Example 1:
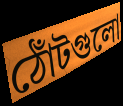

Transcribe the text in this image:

ঠোঁটগুলো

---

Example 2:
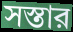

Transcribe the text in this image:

সস্তার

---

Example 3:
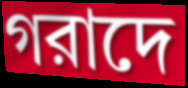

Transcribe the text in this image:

গরাদে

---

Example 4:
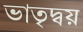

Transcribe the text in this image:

ভাতৃদ্বয়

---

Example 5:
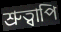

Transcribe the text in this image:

শ্রুত্বাপি